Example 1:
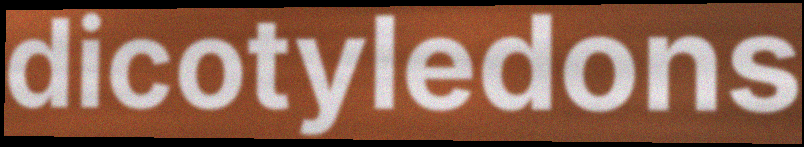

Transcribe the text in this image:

dicotyledons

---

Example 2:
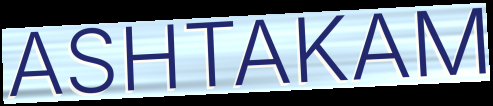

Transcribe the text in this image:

ASHTAKAM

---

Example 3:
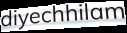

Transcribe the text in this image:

diyechhilam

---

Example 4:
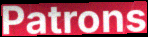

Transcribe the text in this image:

Patrons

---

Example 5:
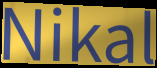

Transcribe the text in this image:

Nikal